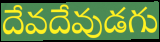
దేవదేవుడగు